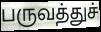
பருவத்துச்